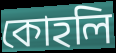
কোহলি